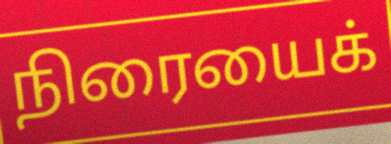
நிரையைக்